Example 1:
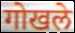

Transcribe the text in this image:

गोखले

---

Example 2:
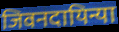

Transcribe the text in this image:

जिवनदायिन्या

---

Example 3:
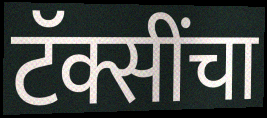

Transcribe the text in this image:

टॅक्सींचा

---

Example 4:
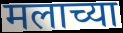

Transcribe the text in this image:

मलाच्या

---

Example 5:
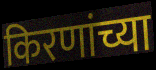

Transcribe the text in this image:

किरणांच्या